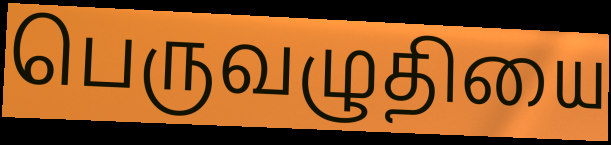
பெருவழுதியை